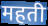
महती